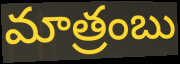
మాత్రంబు